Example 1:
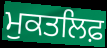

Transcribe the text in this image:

ਮੁਕਤਲਿਫ਼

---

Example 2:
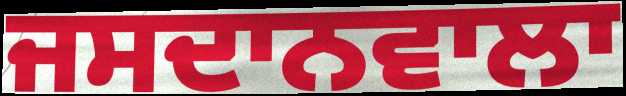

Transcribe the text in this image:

ਜਸਦਾਨਵਾਲਾ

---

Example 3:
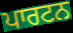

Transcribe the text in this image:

ਪਾਰਟਨ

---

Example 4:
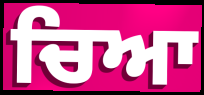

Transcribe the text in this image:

ਚਿਆ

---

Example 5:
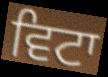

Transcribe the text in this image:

ਵਿਟਾ